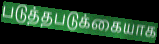
படுத்தபடுக்கையாக